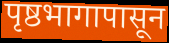
पृष्ठभागापासून